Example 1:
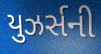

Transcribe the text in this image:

યુઝર્સની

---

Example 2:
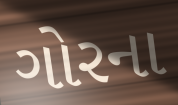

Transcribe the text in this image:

ગોરના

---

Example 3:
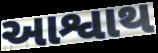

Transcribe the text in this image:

આશ્વાથ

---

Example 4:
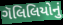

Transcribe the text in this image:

ગૅલિલિયોનું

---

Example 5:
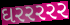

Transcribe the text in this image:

ઘરરરરર